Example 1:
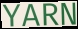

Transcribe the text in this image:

YARN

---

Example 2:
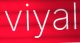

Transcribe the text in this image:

viyal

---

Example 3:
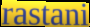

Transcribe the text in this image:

rastani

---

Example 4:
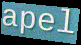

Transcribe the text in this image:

apel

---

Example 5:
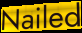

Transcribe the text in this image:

Nailed